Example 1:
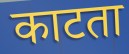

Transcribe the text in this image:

काटता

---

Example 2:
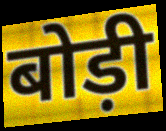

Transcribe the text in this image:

बोड़ी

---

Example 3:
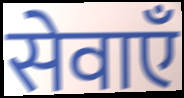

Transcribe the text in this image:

सेवाएँ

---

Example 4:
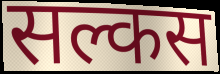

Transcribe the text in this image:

सल्कस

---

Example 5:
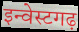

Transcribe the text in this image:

इन्वेस्टगढ़